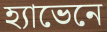
হ্যাভেনে